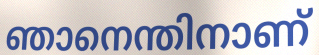
ഞാനെന്തിനാണ്